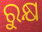
ରୁକ୍ଷ